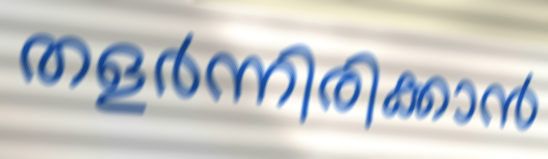
തളർന്നിരിക്കാൻ